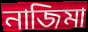
নাজিমা